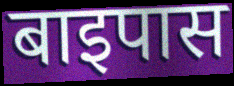
बाइपास